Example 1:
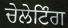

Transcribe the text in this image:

ਚੇਲੇਟਿੰਗ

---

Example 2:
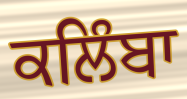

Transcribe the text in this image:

ਕਲਿੰਬਾ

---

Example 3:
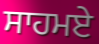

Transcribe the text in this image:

ਸਾਹਮਏ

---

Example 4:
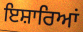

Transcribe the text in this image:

ਇਸ਼ਾਰਿਆਂ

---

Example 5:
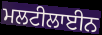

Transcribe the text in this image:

ਮਲਟੀਲਾਈਨ